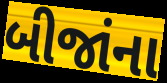
બીજાંના